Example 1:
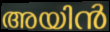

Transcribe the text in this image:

അയിൻ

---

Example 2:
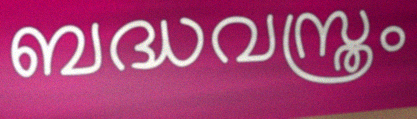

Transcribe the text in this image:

ബദ്ധവസ്ത്രം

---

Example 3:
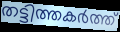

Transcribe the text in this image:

തട്ടിത്തകർത്ത്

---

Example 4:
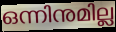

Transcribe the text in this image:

ഒന്നിനുമില്ല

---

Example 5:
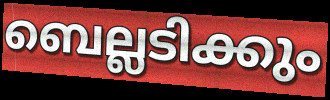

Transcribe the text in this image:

ബെല്ലടിക്കും